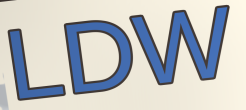
LDW